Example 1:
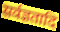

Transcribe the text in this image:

सर्वज्ञतादि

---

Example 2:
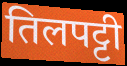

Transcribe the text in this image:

तिलपट्टी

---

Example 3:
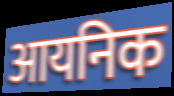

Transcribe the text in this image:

आयनिक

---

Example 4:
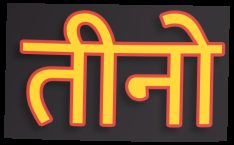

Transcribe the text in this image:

तीनो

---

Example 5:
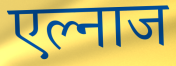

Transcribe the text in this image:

एल्नाज